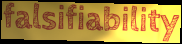
falsifiability